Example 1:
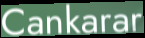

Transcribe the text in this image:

Cankarar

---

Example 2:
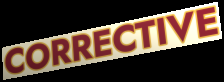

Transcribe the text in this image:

CORRECTIVE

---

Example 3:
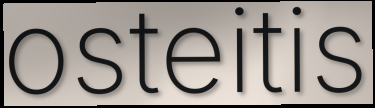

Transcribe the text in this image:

osteitis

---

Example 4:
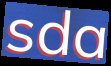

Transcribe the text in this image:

sda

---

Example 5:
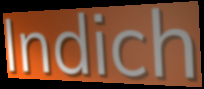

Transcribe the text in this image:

Indich